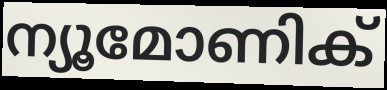
ന്യൂമോണിക്